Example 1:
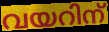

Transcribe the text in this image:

വയറിന്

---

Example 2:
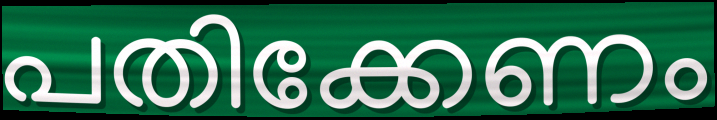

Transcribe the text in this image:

പതിക്കേണം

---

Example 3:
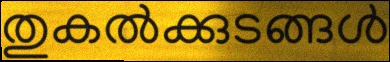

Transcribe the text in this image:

തുകൽക്കുടങ്ങൾ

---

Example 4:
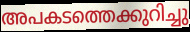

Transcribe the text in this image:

അപകടത്തെക്കുറിച്ചു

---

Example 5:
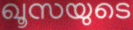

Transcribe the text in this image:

ഖൂസയുടെ